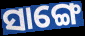
ସାଙ୍ଗେ